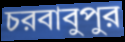
চরবাবুপুর